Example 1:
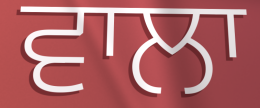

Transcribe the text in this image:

ਵਾਲਾ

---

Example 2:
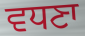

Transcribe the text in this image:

ਵਧਣਾ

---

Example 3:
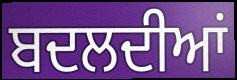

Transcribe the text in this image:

ਬਦਲਦੀਆਂ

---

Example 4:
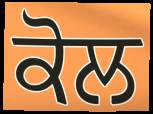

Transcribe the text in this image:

ਕੋਲ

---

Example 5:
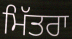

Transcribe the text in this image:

ਮਿੱਤਰਾ